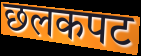
छलकपट